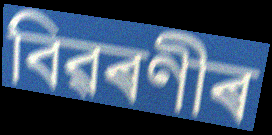
বিৱৰণীৰ